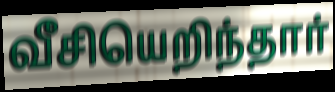
வீசியெறிந்தார்